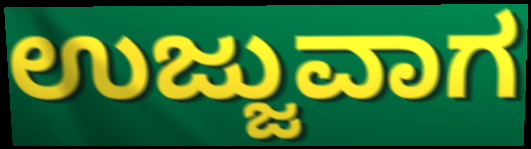
ಉಜ್ಜುವಾಗ